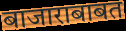
बाजाराबाबत